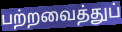
பற்றவைத்துப்